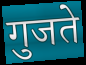
गुजते